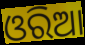
ଓରିଆ